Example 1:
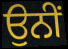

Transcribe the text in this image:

ਉਨੀਂ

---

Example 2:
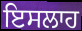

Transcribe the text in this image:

ਇਸਲਾਹ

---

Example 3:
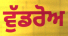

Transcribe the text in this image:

ਵੁੱਡਰੋਅ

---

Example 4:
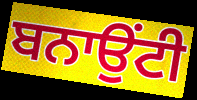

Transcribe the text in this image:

ਬਨਾਉਂਟੀ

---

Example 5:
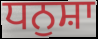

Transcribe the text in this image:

ਧਨੁਸ਼ਾ